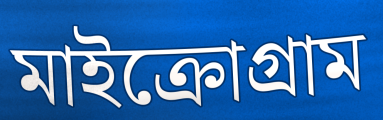
মাইক্রোগ্রাম